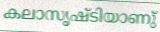
കലാസൃഷ്ടിയാണു്